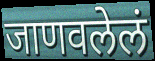
जाणवलेलं